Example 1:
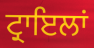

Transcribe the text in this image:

ਟ੍ਰਾਇਲਾਂ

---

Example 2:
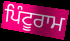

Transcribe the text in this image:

ਪਿੰਟੂਰਾਮ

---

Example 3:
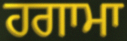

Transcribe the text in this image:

ਹਗਾਮਾ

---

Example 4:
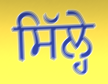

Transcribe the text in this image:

ਸਿੱਲ੍ਹੇ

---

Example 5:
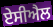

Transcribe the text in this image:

ਏਸੀਐਲ